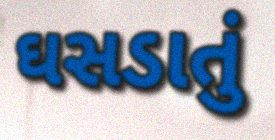
ઘસડાતું